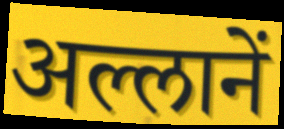
अल्लानें